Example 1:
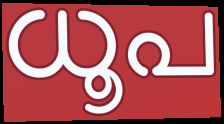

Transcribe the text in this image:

ധൂപ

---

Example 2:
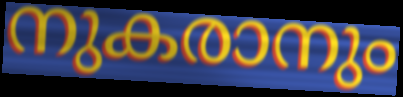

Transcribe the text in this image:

നുകരാനും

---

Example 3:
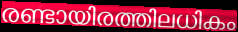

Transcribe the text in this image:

രണ്ടായിരത്തിലധികം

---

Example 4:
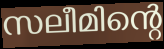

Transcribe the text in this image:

സലീമിന്റെ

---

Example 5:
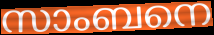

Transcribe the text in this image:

സാംബനെ